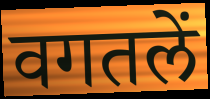
वगतलें